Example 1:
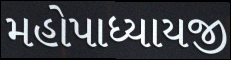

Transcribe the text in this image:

મહોપાધ્યાયજી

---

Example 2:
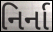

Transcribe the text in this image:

નિર્ના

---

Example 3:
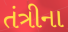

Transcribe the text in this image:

તંત્રીના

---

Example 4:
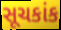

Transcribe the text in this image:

સૂચકાંક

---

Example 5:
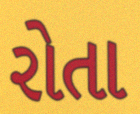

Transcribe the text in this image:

રોતા